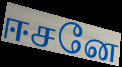
ஈசனே